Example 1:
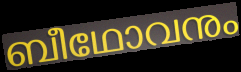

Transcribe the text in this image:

ബീഥോവനും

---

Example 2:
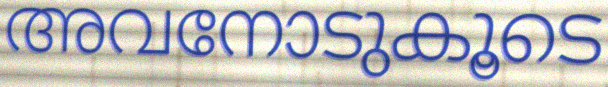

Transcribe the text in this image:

അവനോടുകൂടെ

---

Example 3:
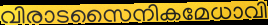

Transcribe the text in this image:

വിരാടസൈനികമേധാവി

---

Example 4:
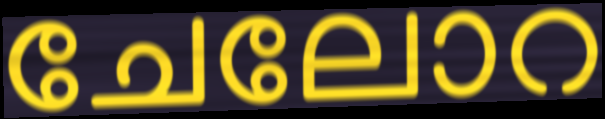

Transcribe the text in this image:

ചേലോറ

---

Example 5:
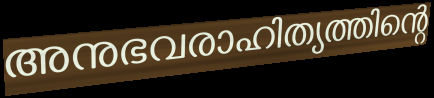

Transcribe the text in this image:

അനുഭവരാഹിത്യത്തിന്റെ